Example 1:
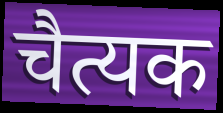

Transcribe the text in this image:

चैत्यक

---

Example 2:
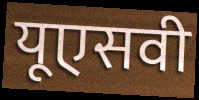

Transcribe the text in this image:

यूएसवी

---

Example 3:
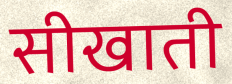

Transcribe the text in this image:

सीखाती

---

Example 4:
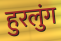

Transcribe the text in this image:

हुरलुंग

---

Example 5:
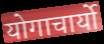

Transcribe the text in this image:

योगाचार्यो